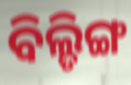
ବିଲ୍ଡିଙ୍ଗ